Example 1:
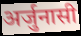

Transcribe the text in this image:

अर्जुनासी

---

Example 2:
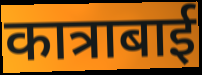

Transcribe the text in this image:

कात्राबाई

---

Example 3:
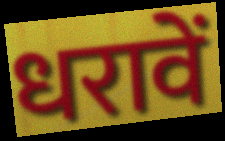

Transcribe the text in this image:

धरावें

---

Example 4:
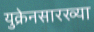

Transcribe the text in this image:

युक्रेनसारख्या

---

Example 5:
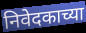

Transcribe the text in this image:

निवेदकाच्या